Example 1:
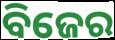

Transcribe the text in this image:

ବିଜେର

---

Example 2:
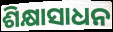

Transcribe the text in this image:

ଶିକ୍ଷାସାଧନ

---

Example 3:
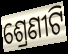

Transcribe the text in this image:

ଶ୍ରେଣୀଟି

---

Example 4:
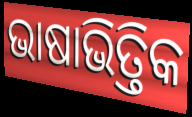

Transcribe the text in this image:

ଭାଷାଭିତ୍ତିକ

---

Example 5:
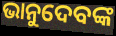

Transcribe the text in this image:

ଭାନୁଦେବଙ୍କ